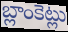
బ్లాంకెట్లు